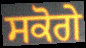
ਸਕੋਗੇ